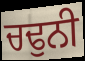
ਚਢੁਨੀ